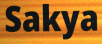
Sakya